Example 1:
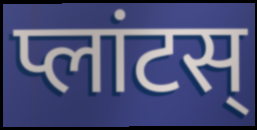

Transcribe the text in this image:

प्लांटस्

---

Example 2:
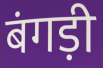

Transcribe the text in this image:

बंगड़ी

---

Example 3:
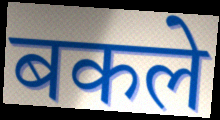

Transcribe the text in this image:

बकले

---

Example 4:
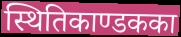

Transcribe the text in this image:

स्थितिकाण्डकका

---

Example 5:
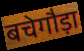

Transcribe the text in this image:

बचेगौड़ा